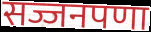
सज्जनपणा